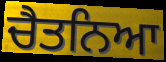
ਚੈਤਨਿਆ